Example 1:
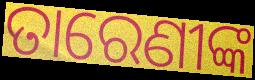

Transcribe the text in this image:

ତାରେଣୀଙ୍କ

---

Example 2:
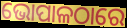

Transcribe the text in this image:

ଭୋପାଳଠାରେ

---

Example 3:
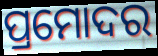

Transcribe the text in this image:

ପ୍ରମୋଦର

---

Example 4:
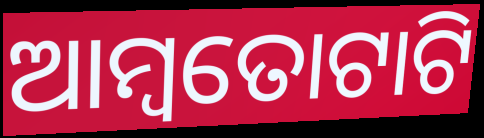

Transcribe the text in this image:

ଆମ୍ବତୋଟାଟି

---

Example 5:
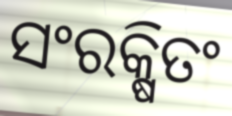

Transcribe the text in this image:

ସଂରକ୍ଷିତଂ